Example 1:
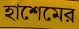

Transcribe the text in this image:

হাশেমের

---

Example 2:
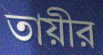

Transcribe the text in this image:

তায়ীর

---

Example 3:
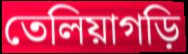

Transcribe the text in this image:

তেলিয়াগড়ি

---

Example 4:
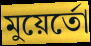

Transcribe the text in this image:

মুয়ের্তো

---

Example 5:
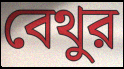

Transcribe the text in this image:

বেথুর